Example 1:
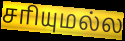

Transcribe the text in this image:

சரியுமல்ல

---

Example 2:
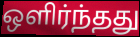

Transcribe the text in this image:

ஒளிர்ந்தது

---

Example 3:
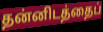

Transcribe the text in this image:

தன்னிடத்தைப்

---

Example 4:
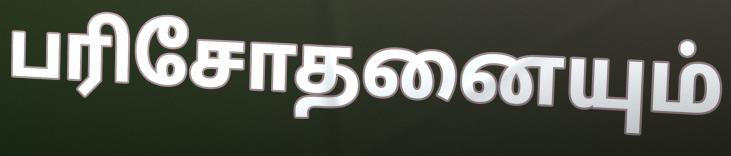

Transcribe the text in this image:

பரிசோதனையும்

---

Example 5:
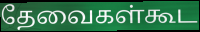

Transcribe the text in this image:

தேவைகள்கூட